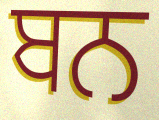
ਬਨ